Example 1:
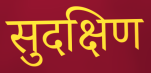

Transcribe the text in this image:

सुदक्षिण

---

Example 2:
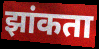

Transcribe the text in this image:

झांकता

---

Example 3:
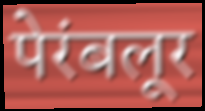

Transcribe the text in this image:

पेरंबलूर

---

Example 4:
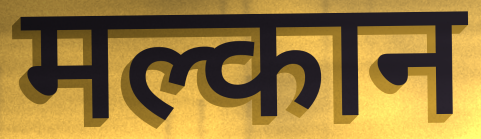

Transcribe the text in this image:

मल्कान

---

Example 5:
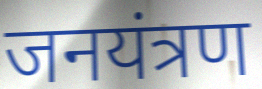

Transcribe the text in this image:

जनयंत्रण